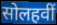
सोलहवीं